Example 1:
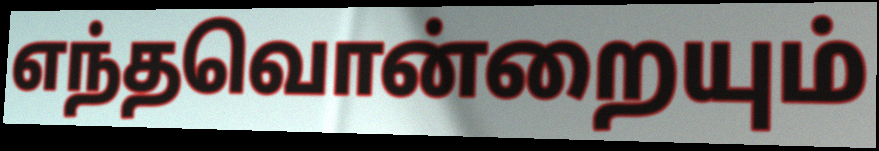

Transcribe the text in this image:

எந்தவொன்றையும்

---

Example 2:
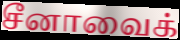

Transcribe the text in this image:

சீனாவைக்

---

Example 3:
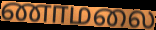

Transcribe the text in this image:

ணாமலை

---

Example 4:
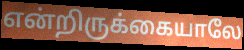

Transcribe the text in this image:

என்றிருக்கையாலே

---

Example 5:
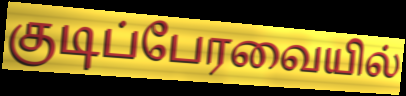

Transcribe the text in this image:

குடிப்பேரவையில்